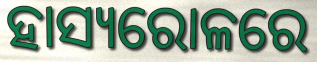
ହାସ୍ୟରୋଳରେ